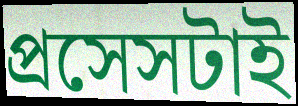
প্রসেসটাই